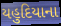
યહુદિયાના